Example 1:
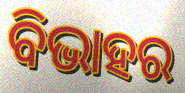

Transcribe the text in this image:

ବିଭାହର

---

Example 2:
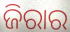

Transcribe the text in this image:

ଜିରାର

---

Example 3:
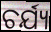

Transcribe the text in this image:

ଚର୍ଯ୍ୟ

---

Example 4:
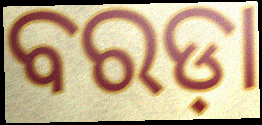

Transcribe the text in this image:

ବରଡ଼ା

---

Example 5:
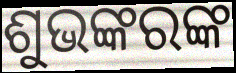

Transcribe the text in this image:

ଶୁଭଙ୍କରଙ୍କ